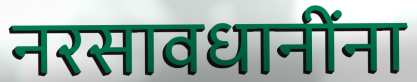
नरसावधानींना